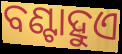
ବଣ୍ଟାହୁଏ